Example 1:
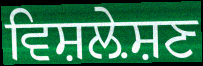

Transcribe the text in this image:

ਵਿਸ਼ਲ਼ੇਸ਼ਣ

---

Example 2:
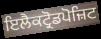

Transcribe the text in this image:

ਇਲੈਕਟ੍ਰੋਡਪੋਜ਼ਿਟ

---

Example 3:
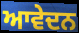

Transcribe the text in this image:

ਆਵੇਦਨ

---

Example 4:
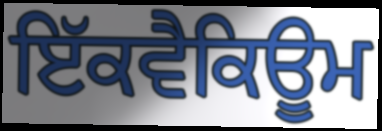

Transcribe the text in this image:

ਇੱਕਵੈਕਿਊਮ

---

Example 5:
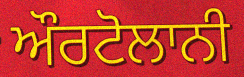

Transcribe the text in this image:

ਔਰਟੋਲਾਨੀ